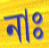
নাঃ